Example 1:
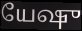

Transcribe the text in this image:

யேஷு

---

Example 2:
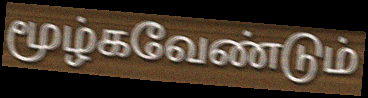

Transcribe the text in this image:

மூழ்கவேண்டும்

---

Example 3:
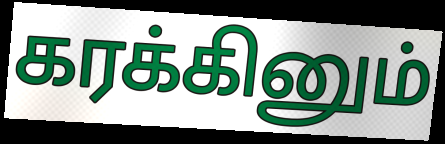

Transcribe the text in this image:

கரக்கினும்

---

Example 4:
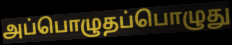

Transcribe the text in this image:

அப்பொழுதப்பொழுது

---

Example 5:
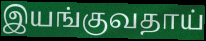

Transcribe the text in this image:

இயங்குவதாய்